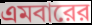
এমবারের